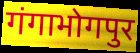
गंगाभोगपुर